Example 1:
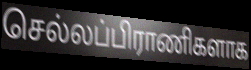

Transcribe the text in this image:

செல்லப்பிராணிகளாக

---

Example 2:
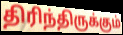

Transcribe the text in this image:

திரிந்திருக்கும்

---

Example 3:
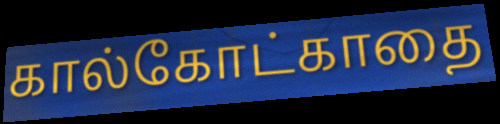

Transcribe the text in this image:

கால்கோட்காதை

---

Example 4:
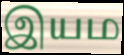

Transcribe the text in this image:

இயம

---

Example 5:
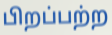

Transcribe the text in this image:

பிறப்பற்ற